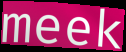
meek